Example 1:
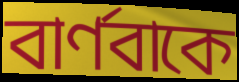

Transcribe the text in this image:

বার্ণবাকে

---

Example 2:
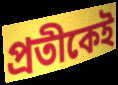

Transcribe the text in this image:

প্রতীকেই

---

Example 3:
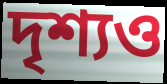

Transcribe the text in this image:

দৃশ্যও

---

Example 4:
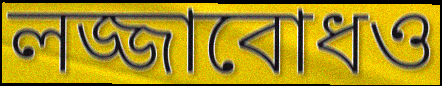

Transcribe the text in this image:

লজ্জাবোধও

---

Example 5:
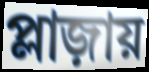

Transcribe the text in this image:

প্লাজ়ায়